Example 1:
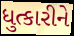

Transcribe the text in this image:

ધુત્કારીને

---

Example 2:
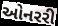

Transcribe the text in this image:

ઓનરરી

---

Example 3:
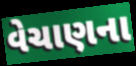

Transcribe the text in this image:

વેચાણના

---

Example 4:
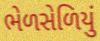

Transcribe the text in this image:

ભેળસેળિયું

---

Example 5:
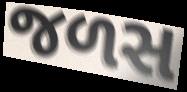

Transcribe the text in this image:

જળસ